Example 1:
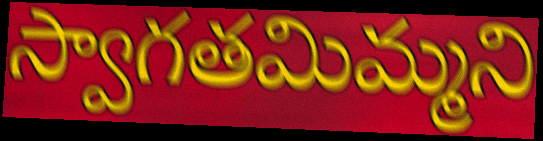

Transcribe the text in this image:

స్వాగతమిమ్మని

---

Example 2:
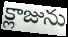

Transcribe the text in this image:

క్లాజును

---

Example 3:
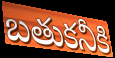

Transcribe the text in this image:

బతుకనీకి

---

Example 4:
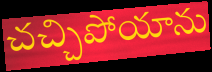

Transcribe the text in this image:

చచ్చిపోయాను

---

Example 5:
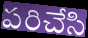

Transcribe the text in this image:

పరిచేసి